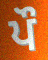
ਪੌ